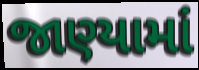
જાણ્યામાં